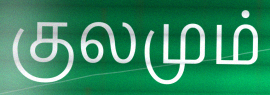
குலமும்